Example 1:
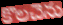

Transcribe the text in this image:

కొలచెను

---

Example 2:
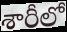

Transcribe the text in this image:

శారీలో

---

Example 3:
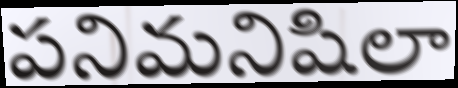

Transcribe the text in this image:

పనిమనిషిలా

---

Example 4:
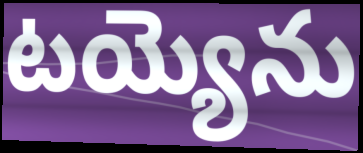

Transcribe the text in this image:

టయ్యెను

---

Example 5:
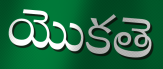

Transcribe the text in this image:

యొకతె